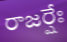
రాజర్షేః